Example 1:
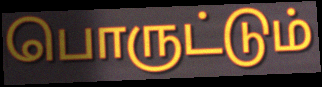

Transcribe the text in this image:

பொருட்டும்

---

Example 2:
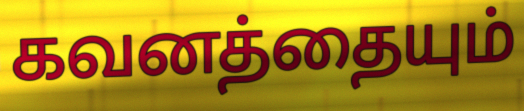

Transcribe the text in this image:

கவனத்தையும்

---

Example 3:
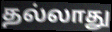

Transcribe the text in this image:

தல்லாது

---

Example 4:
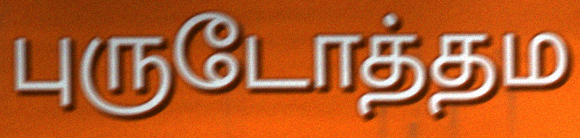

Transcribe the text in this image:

புருடோத்தம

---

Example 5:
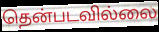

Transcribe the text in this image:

தென்படவில்லை